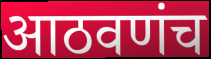
आठवणंच